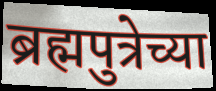
ब्रह्मपुत्रेच्या